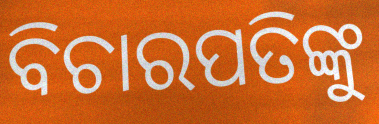
ବିଚାରପତିଙ୍କୁ